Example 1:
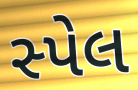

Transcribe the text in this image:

સ્પેલ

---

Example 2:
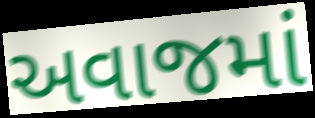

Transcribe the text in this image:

અવાજમાં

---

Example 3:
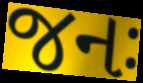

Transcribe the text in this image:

જનઃ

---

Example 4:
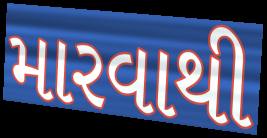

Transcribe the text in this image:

મારવાથી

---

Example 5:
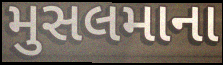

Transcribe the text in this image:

મુસલમાના